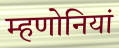
म्हणोनियां